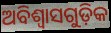
ଅବିଶ୍ଵାସଗୁଡ଼ିକ